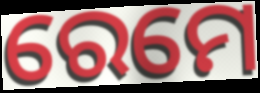
ରେମେ